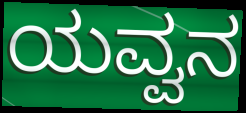
ಯವ್ವನ